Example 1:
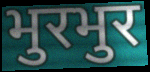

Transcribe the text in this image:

भुरभुर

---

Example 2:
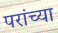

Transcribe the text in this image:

परांच्या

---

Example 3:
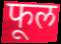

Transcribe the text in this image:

फूल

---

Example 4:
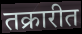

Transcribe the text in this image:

तक्रारीत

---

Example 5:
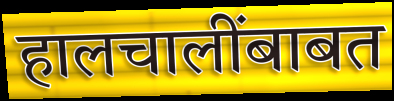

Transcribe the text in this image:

हालचालींबाबत